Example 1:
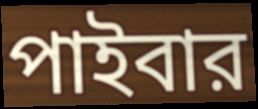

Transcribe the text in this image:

পাইবার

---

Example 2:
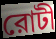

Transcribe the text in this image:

রোটী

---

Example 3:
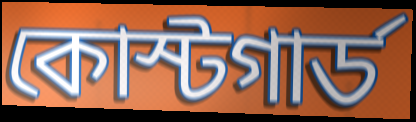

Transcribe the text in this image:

কোস্টগার্ড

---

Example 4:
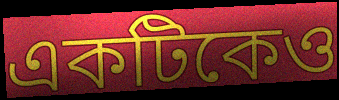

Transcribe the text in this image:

একটিকেও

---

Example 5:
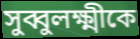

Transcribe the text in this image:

সুব্বুলক্ষ্মীকে